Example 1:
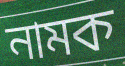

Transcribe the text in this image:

নামক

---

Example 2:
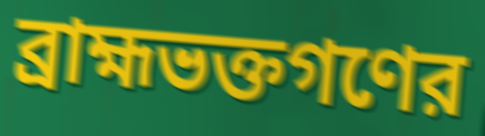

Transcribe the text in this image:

ব্রাহ্মভক্তগণের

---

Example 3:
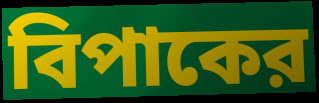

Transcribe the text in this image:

বিপাকের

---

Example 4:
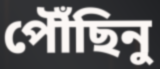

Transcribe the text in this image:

পৌঁছিনু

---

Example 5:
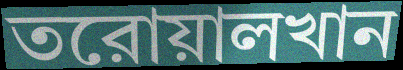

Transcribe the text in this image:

তরোয়ালখান